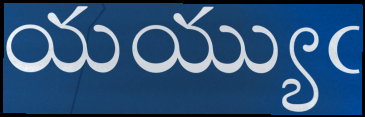
యయ్యుఁ